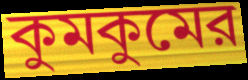
কুমকুমের